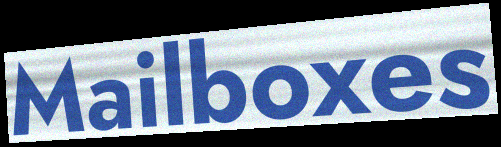
Mailboxes